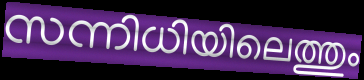
സന്നിധിയിലെത്തും